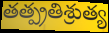
తత్ప్రతిశ్రుత్య